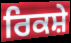
ਰਿਕਸ਼ੇ